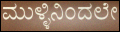
ಮುಳ್ಳಿನಿಂದಲೇ